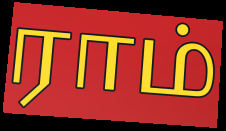
ராம்